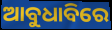
ଆବୁଧାବିରେ